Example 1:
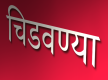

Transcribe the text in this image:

चिडवण्या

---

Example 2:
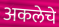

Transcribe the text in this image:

अकलेचे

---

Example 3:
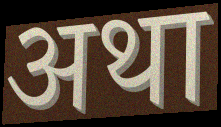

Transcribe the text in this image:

अथा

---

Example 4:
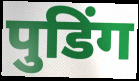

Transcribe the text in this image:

पुडिंग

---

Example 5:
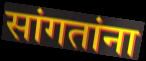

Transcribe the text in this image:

सांगतांना